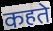
कहते